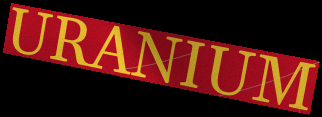
URANIUM